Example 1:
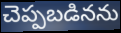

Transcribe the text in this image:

చెప్పబడినను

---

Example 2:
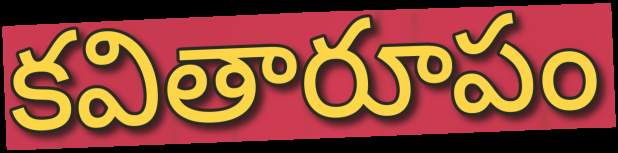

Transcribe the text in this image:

కవితారూపం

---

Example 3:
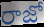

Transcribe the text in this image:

రాజో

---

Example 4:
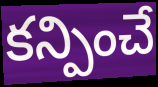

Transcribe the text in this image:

కన్పించే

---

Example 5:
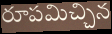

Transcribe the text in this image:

రూపమిచ్చిన